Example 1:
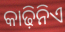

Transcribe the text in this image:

କାଢ଼ିନିଏ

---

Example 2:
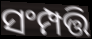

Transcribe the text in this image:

ସଂମ୍ପତ୍ତି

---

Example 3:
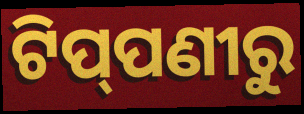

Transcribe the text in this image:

ଟିପ୍‌ପଣୀରୁ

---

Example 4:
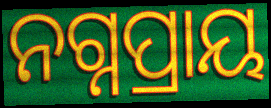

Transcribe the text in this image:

ନଗ୍ନପ୍ରାୟ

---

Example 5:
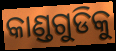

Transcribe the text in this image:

କାଣ୍ଡଗୁଡିକୁ